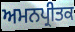
ਅਮਨਪ੍ਰੀਤਕ